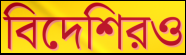
বিদেশিরও